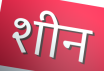
शीन